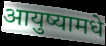
आयुष्यामधे